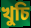
খুচি